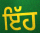
ਇੱਹ